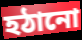
হঠানো